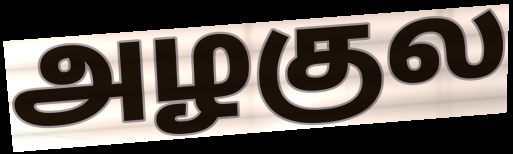
அழகுல